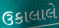
ઉકાલાલે